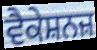
ਵੈਕੇਸ਼ਨਜ਼